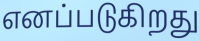
எனப்படுகிறது